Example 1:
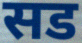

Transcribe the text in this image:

सड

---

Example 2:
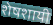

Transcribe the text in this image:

शेषशायी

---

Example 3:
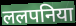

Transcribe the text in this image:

ललपनिया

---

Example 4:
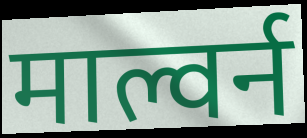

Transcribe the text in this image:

माल्वर्न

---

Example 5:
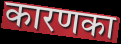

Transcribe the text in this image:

कारणका